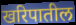
खरिपातील